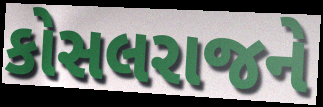
કોસલરાજને